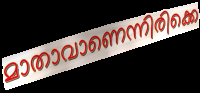
മാതാവാണെന്നിരിക്കെ